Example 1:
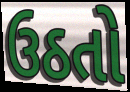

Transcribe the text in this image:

ઉઠતો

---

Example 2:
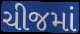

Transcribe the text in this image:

ચીજમાં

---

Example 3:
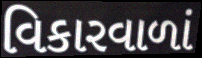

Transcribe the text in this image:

વિકારવાળાં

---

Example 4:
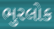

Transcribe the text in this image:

ભુરલોક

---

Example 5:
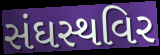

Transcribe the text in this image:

સંઘસ્થવિર